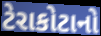
ટેરાકોટાનો